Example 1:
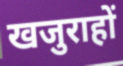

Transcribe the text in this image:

खजुराहों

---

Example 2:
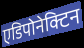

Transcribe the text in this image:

एडिपोनेक्टिन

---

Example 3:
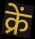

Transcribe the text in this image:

क्रें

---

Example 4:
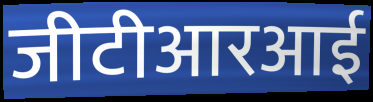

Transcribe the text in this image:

जीटीआरआई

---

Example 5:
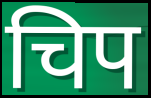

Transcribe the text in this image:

चिप